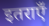
इतराएँ